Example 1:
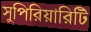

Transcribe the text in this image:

সুপিরিয়ারিটি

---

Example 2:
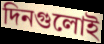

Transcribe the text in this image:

দিনগুলোই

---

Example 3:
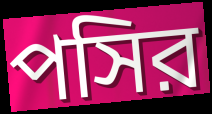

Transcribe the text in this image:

পসির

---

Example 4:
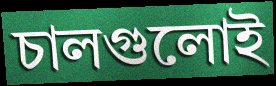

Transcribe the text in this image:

চালগুলোই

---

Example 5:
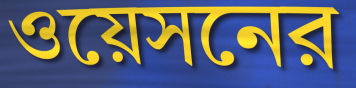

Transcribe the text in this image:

ওয়েসনের